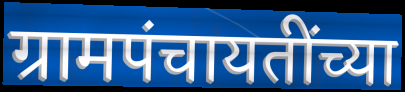
ग्रामपंचायतींच्या